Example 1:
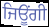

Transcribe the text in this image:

ਜਿਊਂਗੀ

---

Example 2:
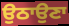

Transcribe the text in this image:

ਉਠਾਉਣਾ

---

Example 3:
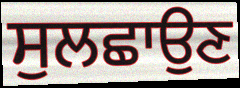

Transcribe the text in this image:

ਸੁਲਛਾਉਣ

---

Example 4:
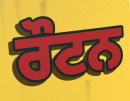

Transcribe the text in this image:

ਰੌਟਨ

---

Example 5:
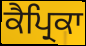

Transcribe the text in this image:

ਕੈਪ੍ਰਿਕਾ